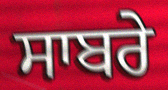
ਸਾਬਰੇ